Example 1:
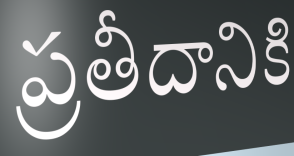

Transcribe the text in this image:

ప్రతీదానికి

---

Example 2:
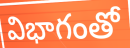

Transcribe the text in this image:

విభాగంతో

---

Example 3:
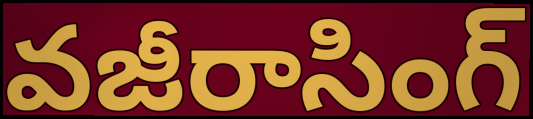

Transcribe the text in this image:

వజీరాసింగ్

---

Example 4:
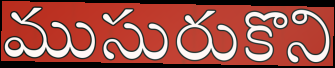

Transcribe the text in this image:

ముసురుకొని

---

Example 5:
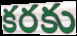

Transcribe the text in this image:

కరకు